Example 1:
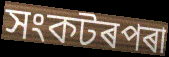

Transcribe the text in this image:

সংকটৰপৰা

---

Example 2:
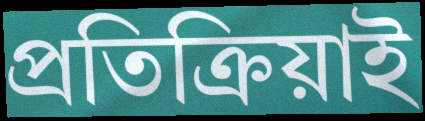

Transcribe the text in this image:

প্ৰতিক্ৰিয়াই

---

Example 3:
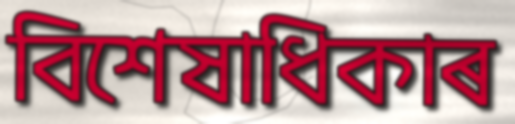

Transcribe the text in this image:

বিশেষাধিকাৰ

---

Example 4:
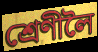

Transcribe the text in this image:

শ্ৰেণীলৈ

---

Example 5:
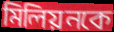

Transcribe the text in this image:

মিলিয়নকে